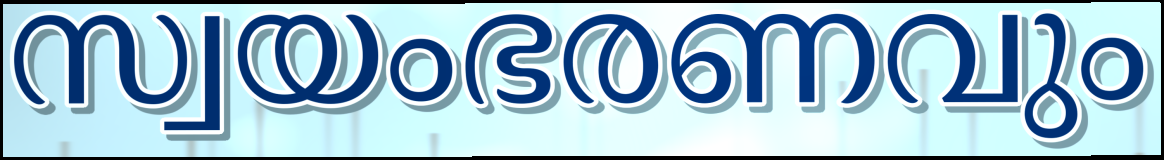
സ്വയംഭരണവും